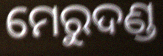
ମେରୁଦଣ୍ଡ